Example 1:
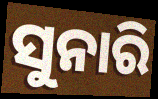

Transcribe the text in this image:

ସୁନାରି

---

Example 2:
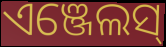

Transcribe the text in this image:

ଏଞ୍ଜେଲସ୍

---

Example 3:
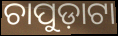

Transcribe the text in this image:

ଚାପୁଡ଼ାଟା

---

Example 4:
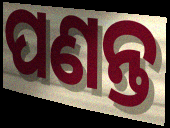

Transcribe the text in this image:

ପଣନ୍ତ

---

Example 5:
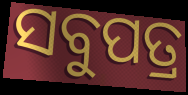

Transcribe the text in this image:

ସବୁପତ୍ର